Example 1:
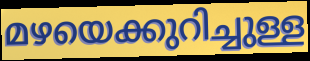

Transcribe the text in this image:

മഴയെക്കുറിച്ചുള്ള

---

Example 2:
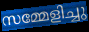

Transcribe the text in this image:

സമ്മേളിച്ചു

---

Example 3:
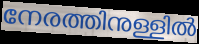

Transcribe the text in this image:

നേരത്തിനുള്ളിൽ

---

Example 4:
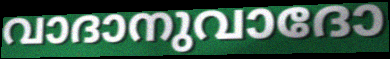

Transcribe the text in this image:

വാദാനുവാദോ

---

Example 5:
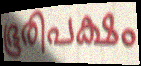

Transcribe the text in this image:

ഭൂരിപക്ഷം